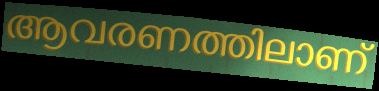
ആവരണത്തിലാണ്